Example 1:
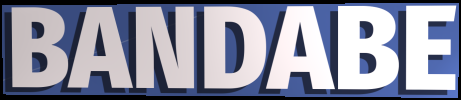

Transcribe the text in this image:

BANDABE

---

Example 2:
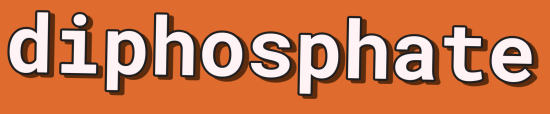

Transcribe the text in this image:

diphosphate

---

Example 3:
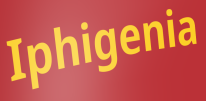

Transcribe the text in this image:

Iphigenia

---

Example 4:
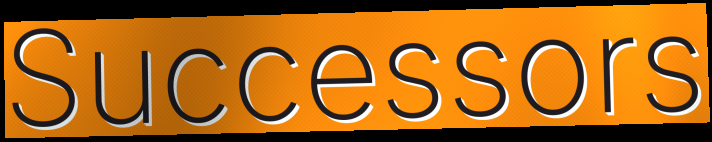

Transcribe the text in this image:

Successors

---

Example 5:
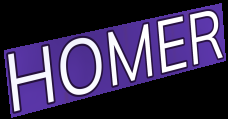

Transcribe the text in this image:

HOMER